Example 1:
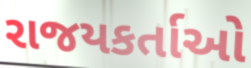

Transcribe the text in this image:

રાજયકર્તાઓ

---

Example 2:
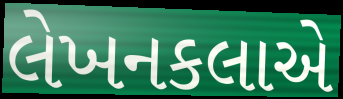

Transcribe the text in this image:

લેખનકલાએ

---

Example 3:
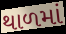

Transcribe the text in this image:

થાળમાં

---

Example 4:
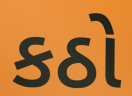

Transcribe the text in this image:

કઠો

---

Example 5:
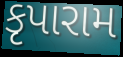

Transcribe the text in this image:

કૃપારામ